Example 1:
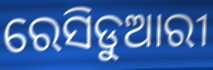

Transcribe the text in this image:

ରେସିଡୁଆରୀ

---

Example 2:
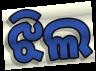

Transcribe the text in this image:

ଝିଲ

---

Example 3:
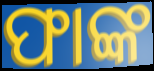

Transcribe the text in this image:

ଫାଙ୍କ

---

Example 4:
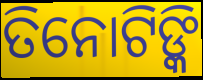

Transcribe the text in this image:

ତିନୋଟିଙ୍କି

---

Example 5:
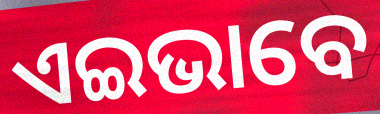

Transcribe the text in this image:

ଏଇଭାବେ